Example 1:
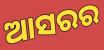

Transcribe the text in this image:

ଆସରର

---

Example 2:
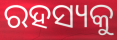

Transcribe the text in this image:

ରହସ୍ୟକୁ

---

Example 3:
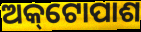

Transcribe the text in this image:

ଅକ୍‌ଟୋପାଶ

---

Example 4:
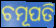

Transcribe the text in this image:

ଚମୂପତି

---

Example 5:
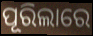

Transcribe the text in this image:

ପୂରିଲାରେ